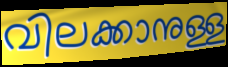
വിലക്കാനുള്ള